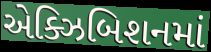
એક્ઝિબિશનમાં